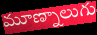
మూణ్నాలుగు